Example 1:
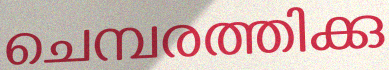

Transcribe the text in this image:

ചെമ്പരത്തിക്കു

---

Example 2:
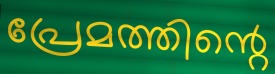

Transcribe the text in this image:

പ്രേമത്തിന്റെ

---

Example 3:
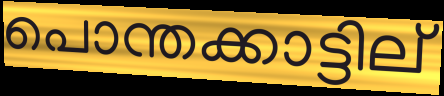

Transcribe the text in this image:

പൊന്തക്കാട്ടില്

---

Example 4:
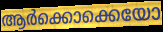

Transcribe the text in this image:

ആർക്കൊക്കെയോ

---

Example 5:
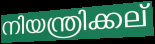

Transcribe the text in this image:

നിയന്ത്രിക്കല്